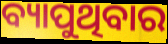
ବ୍ୟାପୁଥିବାର